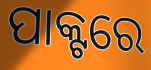
ପାକ୍ଟରେ